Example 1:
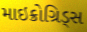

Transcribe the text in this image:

માઇક્રોગ્રિડ્સ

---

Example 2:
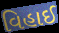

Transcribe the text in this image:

વિહાઈ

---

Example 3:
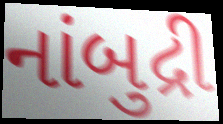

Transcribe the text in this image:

નાંબુદ્રી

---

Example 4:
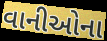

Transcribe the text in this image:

વાનીઓના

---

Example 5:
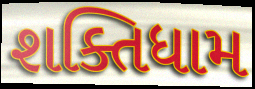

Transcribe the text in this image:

શક્તિધામ